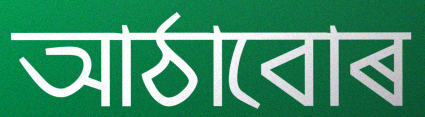
আঠাবোৰ